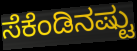
ಸೆಕೆಂಡಿನಷ್ಟು